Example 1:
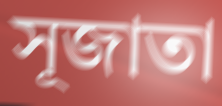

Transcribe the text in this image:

সূজাতা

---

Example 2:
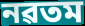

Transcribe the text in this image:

নৱতম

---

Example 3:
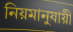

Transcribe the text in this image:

নিয়মানুযায়ী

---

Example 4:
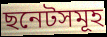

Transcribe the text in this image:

ছনেটসমূহ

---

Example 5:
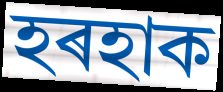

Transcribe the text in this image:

হৰহাক